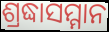
ଶ୍ରଦ୍ଧାସମ୍ମାନ